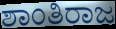
ಶಾಂತಿರಾಜ